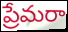
ప్రేమరా